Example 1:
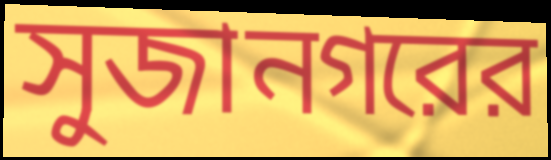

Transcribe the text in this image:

সুজানগরের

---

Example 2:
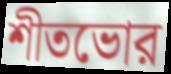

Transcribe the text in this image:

শীতভোর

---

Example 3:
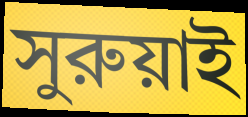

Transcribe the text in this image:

সুরুয়াই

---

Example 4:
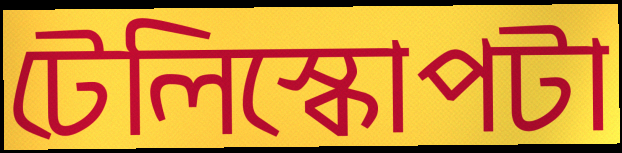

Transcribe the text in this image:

টেলিস্কোপটা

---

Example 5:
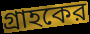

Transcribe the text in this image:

গ্রাহকের